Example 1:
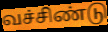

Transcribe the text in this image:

வச்சிண்டு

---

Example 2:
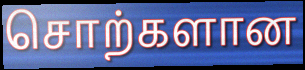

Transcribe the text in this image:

சொற்களான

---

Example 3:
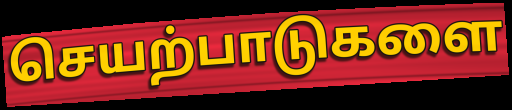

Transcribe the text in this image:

செயற்பாடுகளை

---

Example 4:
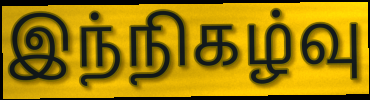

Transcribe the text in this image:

இந்நிகழ்வு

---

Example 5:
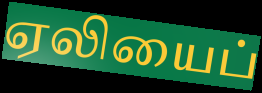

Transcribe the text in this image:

ஏலியைப்